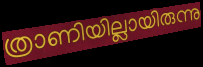
ത്രാണിയില്ലായിരുന്നു